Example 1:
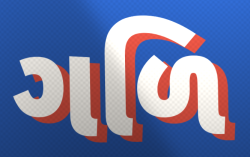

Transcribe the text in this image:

ગળિ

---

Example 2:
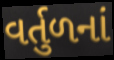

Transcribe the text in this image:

વર્તુળનાં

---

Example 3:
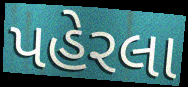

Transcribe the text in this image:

પહેરલા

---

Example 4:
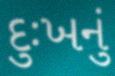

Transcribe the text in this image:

દુઃખનું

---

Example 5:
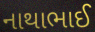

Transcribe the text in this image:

નાથાભાઈ